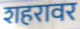
शहरावर